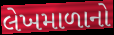
લેખમાળાનો